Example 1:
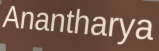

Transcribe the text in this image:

Anantharya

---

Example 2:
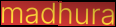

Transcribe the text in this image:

madhura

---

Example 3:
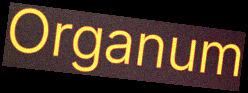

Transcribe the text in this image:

Organum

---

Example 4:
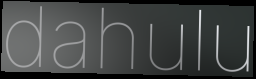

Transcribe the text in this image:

dahulu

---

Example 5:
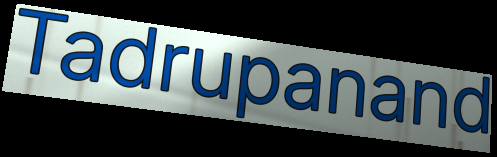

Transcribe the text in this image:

Tadrupanand